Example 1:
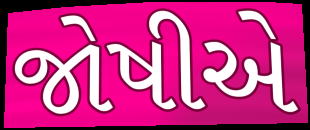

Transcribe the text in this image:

જોષીએ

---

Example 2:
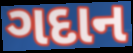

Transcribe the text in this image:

ગદાન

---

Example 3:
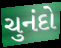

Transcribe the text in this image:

ચુનંદો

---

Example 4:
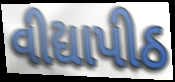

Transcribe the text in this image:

વીદ્યાપીઠ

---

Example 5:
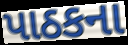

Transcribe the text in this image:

પાઠકના